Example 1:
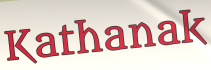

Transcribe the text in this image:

Kathanak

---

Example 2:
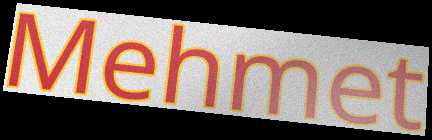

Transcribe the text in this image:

Mehmet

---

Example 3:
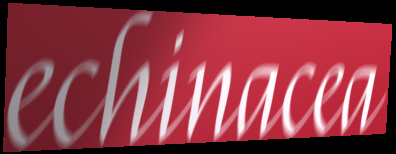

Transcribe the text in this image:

echinacea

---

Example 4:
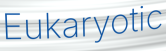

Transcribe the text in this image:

Eukaryotic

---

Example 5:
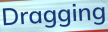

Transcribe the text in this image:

Dragging